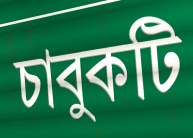
চাবুকটি